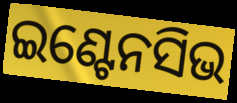
ଇଣ୍ଟେନସିଭ